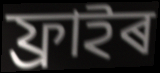
ফ্ৰাইৰ